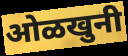
ओळखुनी